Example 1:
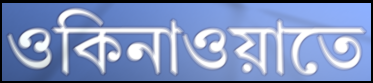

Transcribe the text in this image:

ওকিনাওয়াতে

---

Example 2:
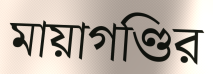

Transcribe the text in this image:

মায়াগণ্ডির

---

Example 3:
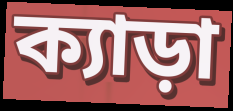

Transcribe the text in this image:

ক্যাড়া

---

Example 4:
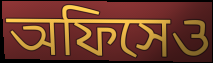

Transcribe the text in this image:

অফিসেও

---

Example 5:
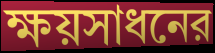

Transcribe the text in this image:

ক্ষয়সাধনের